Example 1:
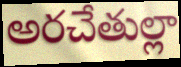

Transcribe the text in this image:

అరచేతుల్లా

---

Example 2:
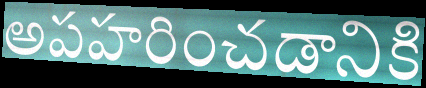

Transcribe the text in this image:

అపహరించడానికి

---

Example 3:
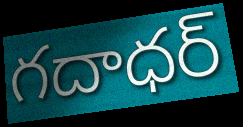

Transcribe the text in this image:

గదాధర్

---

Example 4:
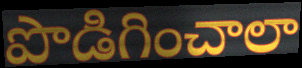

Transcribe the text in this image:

పొడిగించాలా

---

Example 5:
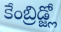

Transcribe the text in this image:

కేంబ్రిడ్జ్లో